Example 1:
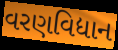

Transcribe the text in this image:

વરણવિદ્યાન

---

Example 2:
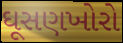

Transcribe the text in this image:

ઘૂસણખોરો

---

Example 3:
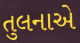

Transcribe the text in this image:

તુલનાએ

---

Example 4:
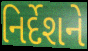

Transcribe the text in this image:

નિર્દેશને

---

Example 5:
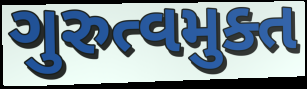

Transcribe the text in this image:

ગુરુત્વમુક્ત